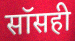
सॉसही